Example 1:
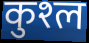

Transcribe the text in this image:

कुश्ल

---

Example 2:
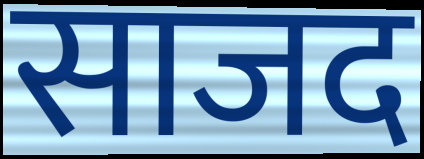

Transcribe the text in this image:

साजद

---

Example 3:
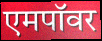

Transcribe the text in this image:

एमपॉवर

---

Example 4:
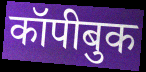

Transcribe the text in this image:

कॉपीबुक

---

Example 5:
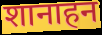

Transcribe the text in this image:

शानाहन